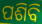
ପଶିବି